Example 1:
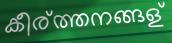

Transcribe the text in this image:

കീര്ത്തനങ്ങള്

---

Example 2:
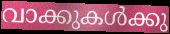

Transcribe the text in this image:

വാക്കുകൾക്കു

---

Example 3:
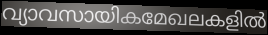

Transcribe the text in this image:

വ്യാവസായികമേഖലകളിൽ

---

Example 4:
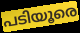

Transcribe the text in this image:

പടിയൂരെ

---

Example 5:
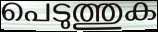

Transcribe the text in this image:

പെടുത്തുക